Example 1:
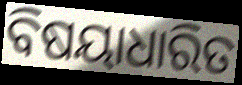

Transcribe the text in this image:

ବିଷୟାଧାରିତ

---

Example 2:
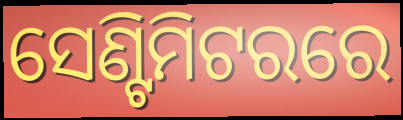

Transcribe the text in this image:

ସେଣ୍ଟିମିଟରରେ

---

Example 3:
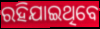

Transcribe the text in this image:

ରହିଯାଇଥିବେ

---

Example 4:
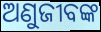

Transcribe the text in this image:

ଅଣୁଜୀବଙ୍କ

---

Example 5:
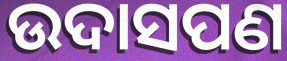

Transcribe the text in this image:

ଉଦାସପଣ